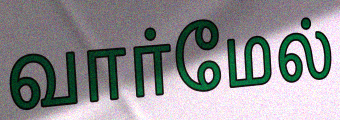
வார்மேல்